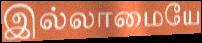
இல்லாமையே